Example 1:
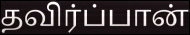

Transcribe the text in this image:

தவிர்ப்பான்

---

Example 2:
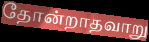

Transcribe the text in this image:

தோன்றாதவாறு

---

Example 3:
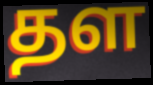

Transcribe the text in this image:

தள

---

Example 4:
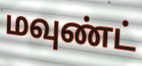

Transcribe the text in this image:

மவுண்ட்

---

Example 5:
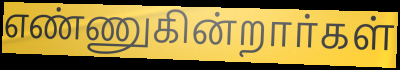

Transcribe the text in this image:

எண்ணுகின்றார்கள்